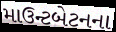
માઉન્ટબેટનના